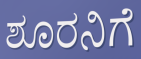
ಶೂರನಿಗೆ